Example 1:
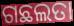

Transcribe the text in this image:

ଗଛଲତା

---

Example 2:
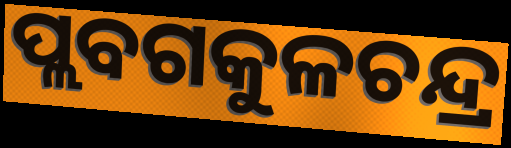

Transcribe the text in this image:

ପ୍ଲବଗକୁଳଚନ୍ଦ୍ର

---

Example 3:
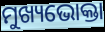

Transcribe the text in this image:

ମୁଖ୍ୟଭୋକ୍ତା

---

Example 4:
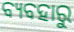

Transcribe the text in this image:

ବ୍ୟବହାରୁ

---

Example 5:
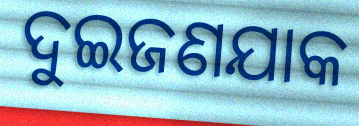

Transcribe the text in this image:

ଦୁଇଜଣଯାକ